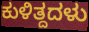
ಕುಳಿತ್ದದಳು